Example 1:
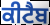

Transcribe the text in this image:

ਕੀਟੈਬ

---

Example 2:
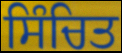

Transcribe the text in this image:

ਸਿੰਚਿਤ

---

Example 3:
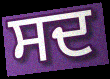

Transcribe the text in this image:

ਸਦ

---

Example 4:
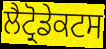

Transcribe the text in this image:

ਲੈਟ੍ਰੋਡੇਕਟਸ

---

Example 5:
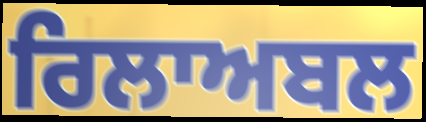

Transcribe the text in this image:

ਰਿਲਾਅਬਲ